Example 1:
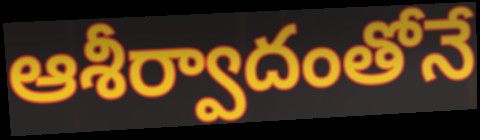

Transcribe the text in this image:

ఆశీర్వాదంతోనే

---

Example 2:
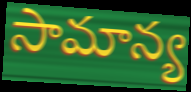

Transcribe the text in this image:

సామాన్య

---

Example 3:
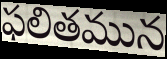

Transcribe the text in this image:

ఫలితమున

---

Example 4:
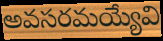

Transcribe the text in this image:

అవసరమయ్యేవి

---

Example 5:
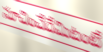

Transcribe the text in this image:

సూచించేదేమిటంటే